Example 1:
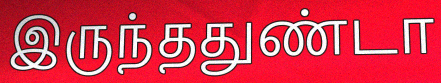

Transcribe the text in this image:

இருந்ததுண்டா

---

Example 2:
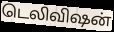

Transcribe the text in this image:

டெலிவிஷன்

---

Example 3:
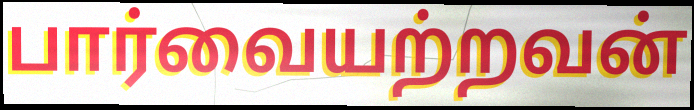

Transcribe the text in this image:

பார்வையற்றவன்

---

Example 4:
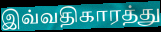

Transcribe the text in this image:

இவ்வதிகாரத்து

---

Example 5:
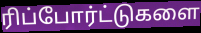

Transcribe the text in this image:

ரிப்போர்ட்டுகளை